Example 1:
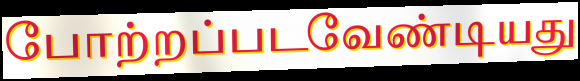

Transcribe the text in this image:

போற்றப்படவேண்டியது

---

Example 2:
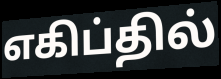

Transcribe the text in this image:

எகிப்தில்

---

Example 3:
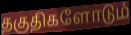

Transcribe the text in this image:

தகுதிகளோடும்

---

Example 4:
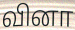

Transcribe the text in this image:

வினா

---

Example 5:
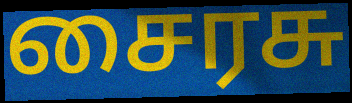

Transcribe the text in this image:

சைரசு